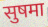
सुषमा